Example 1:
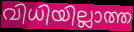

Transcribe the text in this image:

വിധിയില്ലാത്ത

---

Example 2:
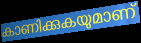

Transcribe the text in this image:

കാണിക്കുകയുമാണ്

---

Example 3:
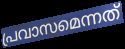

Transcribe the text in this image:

പ്രവാസമെന്നത്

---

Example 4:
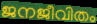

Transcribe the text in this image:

ജനജീവിതം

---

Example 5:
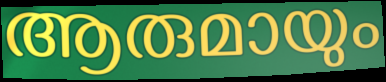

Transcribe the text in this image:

ആരുമായും